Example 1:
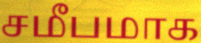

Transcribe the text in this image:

சமீபமாக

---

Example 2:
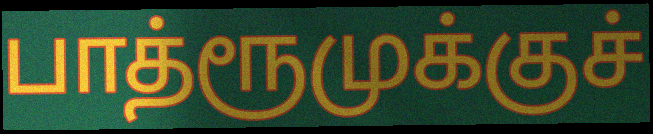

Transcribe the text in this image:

பாத்ரூமுக்குச்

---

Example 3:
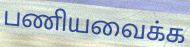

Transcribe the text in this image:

பணியவைக்க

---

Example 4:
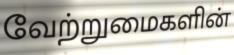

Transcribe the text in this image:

வேற்றுமைகளின்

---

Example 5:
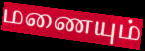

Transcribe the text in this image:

மணையும்